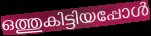
ഒത്തുകിട്ടിയപ്പോൾ